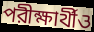
পরীক্ষার্থীও